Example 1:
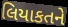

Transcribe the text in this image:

લિયાકતને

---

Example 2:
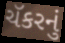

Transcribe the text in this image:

ચૅકરનું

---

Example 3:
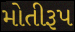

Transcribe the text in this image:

મોતીરૂપ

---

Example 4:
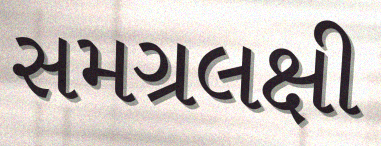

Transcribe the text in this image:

સમગ્રલક્ષી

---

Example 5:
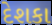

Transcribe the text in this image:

દેશકા